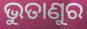
ଭୁତାଣୁର